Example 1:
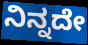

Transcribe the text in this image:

ನಿನ್ನದೇ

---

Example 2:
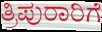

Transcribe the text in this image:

ತ್ರಿಪುರಾರಿಗೆ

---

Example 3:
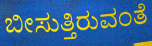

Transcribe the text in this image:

ಬೀಸುತ್ತಿರುವಂತೆ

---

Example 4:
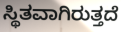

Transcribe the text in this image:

ಸ್ಥಿತವಾಗಿರುತ್ತದೆ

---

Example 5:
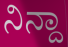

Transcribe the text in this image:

ನಿನ್ದಾ